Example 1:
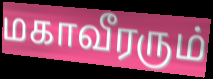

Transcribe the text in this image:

மகாவீரரும்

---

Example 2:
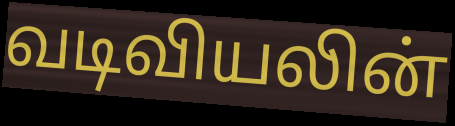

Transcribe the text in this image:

வடிவியலின்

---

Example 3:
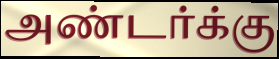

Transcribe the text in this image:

அண்டர்க்கு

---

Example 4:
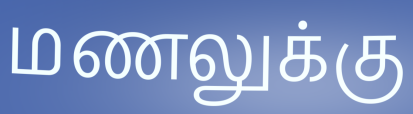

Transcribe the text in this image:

மணலுக்கு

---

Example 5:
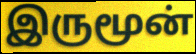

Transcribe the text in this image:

இருமூன்